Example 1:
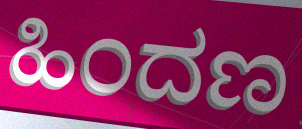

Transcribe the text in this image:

ಹಿಂದಣ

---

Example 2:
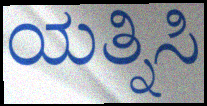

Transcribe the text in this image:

ಯತ್ನಿಸಿ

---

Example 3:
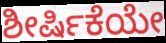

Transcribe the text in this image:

ಶೀರ್ಷಿಕೆಯೇ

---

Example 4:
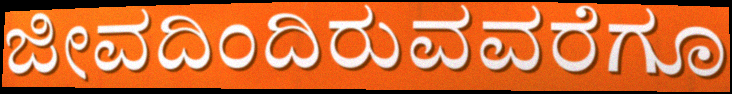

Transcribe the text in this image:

ಜೀವದಿಂದಿರುವವರೆಗೂ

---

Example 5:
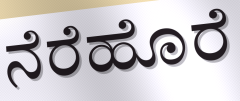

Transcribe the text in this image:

ನೆರೆಹೊರೆ